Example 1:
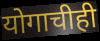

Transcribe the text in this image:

योगाचीही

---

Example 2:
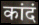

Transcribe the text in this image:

कांदं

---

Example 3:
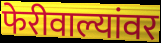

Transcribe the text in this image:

फेरीवाल्यांवर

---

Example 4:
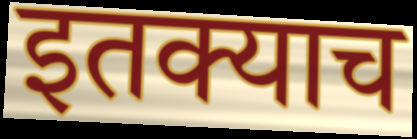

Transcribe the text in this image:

इतक्याच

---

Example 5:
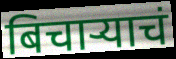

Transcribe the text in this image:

बिचाऱ्याचं